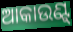
ଆକାଉଣ୍ଟ୍